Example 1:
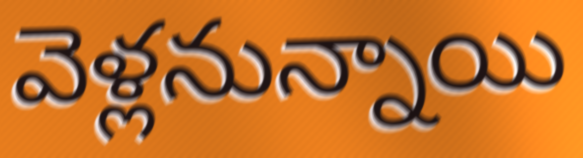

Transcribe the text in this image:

వెళ్లనున్నాయి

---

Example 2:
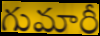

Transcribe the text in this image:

గుమారీ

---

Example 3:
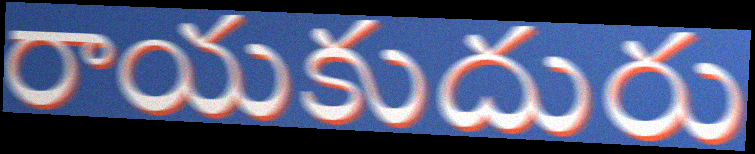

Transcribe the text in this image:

రాయకుదురు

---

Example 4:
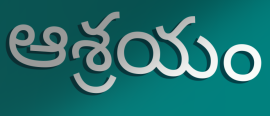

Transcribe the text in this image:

ఆశ్రయం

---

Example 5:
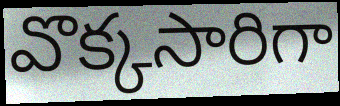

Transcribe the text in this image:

వొక్కసారిగా